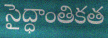
సైద్ధాంతికత